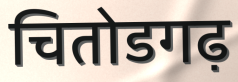
चितोडगढ़